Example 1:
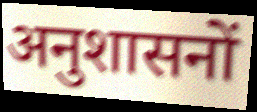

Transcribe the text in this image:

अनुशासनों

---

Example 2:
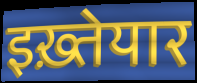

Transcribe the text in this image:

इख़्तेयार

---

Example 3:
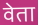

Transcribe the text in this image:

वेता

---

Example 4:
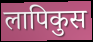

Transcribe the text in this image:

लापिकुस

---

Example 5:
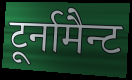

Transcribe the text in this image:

टूर्नामैन्ट